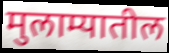
मुलाम्यातील